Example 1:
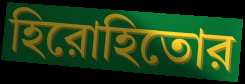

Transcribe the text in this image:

হিরোহিতোর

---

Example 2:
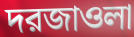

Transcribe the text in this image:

দরজাওলা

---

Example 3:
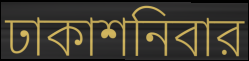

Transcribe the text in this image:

ঢাকাশনিবার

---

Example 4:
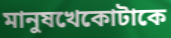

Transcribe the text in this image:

মানুষখেকোটাকে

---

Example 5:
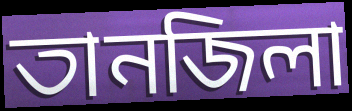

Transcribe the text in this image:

তানজিলা